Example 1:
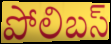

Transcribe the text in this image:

పోలిబస్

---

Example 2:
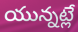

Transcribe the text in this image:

యున్నట్లే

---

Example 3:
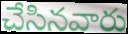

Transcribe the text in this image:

చేసినవారు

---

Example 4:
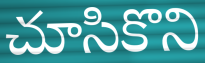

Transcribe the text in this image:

చూసికొని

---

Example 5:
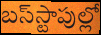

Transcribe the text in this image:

బస్‌స్టాపుల్లో